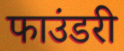
फाउंडरी